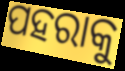
ପହରାକୁ